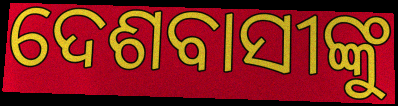
ଦେଶବାସୀଙ୍କୁ